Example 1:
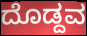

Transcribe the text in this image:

ದೊಡ್ದವ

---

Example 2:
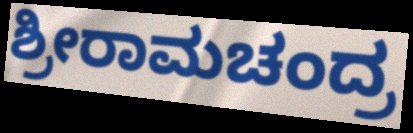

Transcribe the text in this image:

ಶ್ರೀರಾಮಚಂದ್ರ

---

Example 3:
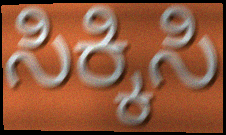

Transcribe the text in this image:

ಸಿಕ್ಕಿಸಿ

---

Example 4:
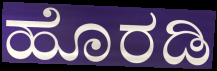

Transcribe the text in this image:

ಹೊರಡಿ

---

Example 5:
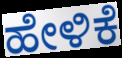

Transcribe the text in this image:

ಹೇಳಿಕೆ